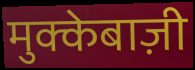
मुक्केबाज़ी